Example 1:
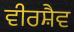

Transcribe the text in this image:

ਵੀਰਸ਼ੈਵ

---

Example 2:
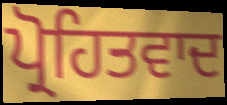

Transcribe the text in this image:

ਪ੍ਰੋਹਿਤਵਾਦ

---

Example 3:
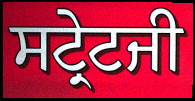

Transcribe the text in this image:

ਸਟ੍ਰੇਟਜੀ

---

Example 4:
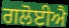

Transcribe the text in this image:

ਗਲੋਈਐ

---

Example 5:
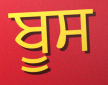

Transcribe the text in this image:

ਬੂਸ